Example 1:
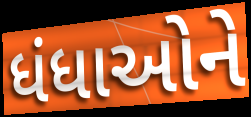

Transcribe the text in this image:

ધંધાઓને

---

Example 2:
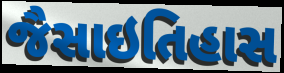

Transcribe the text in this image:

જૈસાઇતિહાસ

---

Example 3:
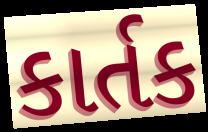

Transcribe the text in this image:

કાર્તક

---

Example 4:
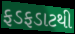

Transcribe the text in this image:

ફડફડાટથી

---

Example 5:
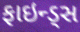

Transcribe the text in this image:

ફાઇન્ડ્સ